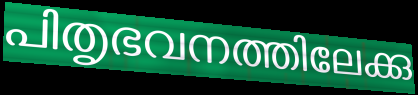
പിതൃഭവനത്തിലേക്കു